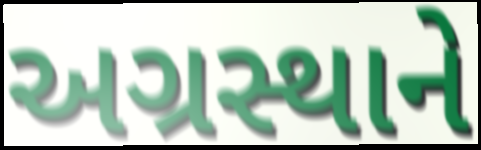
અગ્રસ્થાને